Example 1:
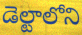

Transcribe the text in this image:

డెల్టాలోని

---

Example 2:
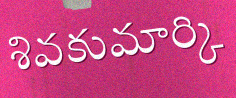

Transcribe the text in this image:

శివకుమార్కి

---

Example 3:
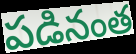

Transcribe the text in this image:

పడినంత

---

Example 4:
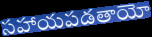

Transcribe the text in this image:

సహాయపడతాయో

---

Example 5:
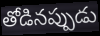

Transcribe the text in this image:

తోడినప్పుడు